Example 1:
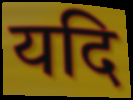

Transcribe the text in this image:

यदि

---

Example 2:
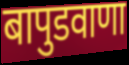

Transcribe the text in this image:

बापुडवाणा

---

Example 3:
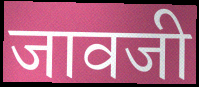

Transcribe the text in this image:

जावजी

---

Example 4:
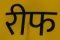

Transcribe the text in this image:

रीफ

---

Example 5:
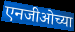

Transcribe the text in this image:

एनजीओच्या